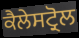
ਕੈਲੇਸਟ੍ਰੋਲ